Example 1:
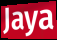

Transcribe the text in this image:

Jaya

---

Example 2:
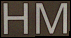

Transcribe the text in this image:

HM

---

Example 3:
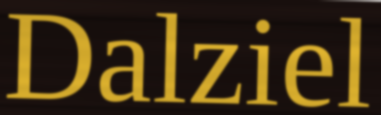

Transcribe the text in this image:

Dalziel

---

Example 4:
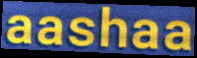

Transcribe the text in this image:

aashaa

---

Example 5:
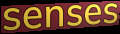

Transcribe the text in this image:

senses